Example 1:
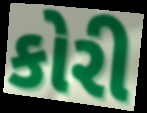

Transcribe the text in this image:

કોરી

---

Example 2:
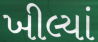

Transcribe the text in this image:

ખીલ્યાં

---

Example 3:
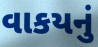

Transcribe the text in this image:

વાકયનું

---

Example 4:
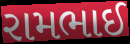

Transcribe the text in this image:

રામભાઈ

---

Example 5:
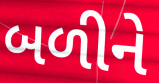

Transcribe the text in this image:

બળીને